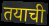
तयाची